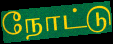
நோட்டு